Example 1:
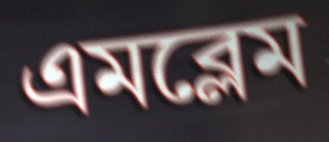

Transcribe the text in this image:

এমব্লেম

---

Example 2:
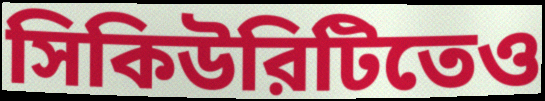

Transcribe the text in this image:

সিকিউরিটিতেও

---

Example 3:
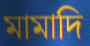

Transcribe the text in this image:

মামাদি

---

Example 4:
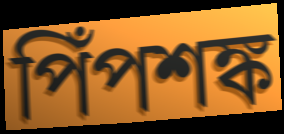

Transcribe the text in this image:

পিঁপশঙ্ক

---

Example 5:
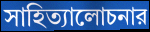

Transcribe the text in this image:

সাহিত্যালোচনার